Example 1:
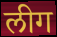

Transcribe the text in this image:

लीग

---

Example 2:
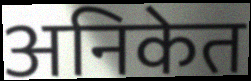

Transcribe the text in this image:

अनिकेत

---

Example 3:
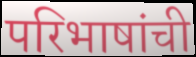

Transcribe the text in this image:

परिभाषांची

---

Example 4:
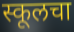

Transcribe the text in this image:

स्कूलचा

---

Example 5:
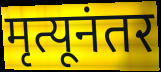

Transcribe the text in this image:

मृत्यूनंतर